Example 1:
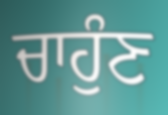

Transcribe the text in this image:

ਚਾਹੁੰਣ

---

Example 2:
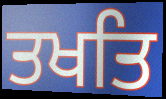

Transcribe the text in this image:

ਤਖਤਿ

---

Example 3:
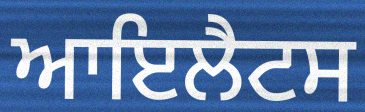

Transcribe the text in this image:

ਆਇਲੈਟਸ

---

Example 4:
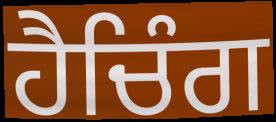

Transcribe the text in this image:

ਹੈਚਿੰਗ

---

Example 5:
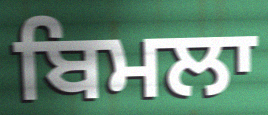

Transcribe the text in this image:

ਬਿਮਲਾ